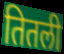
तितली